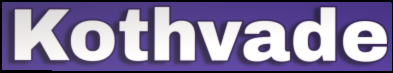
Kothvade